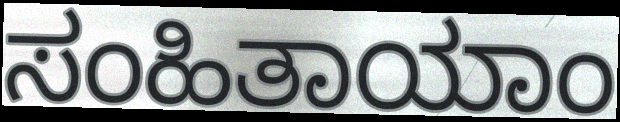
ಸಂಹಿತಾಯಾಂ